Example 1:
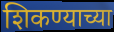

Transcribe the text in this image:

शिकण्याच्या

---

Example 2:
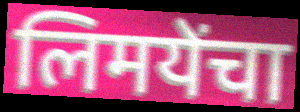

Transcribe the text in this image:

लिमयेंचा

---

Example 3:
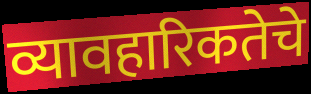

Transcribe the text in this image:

व्यावहारिकतेचे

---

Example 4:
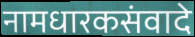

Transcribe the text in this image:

नामधारकसंवादे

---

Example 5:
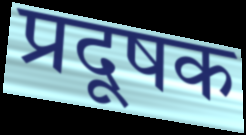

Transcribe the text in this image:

प्रदूषक